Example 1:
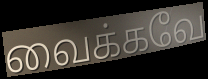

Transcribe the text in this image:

வைக்கவே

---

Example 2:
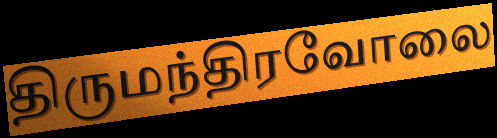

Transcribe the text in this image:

திருமந்திரவோலை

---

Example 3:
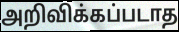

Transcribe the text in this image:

அறிவிக்கப்படாத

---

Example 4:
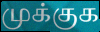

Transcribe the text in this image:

முக்குக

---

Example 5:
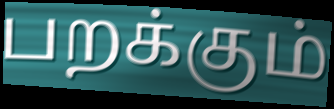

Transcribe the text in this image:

பறக்கும்